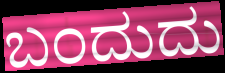
ಬಂದುದು